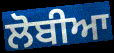
ਲੋਬੀਆ